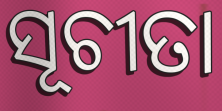
ସୂଚୀତା